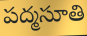
పద్మసూతి